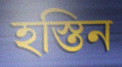
হস্তিন